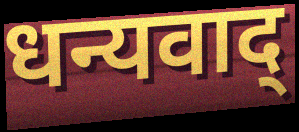
धन्यवाद्